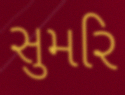
સુમરિ